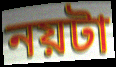
নয়টা